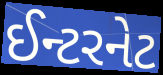
ઈન્ટરનેટ